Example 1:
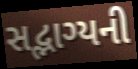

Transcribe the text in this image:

સદ્ભાગ્યની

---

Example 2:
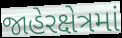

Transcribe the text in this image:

જાહેરક્ષેત્રમાં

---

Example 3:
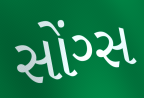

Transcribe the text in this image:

સોંગ્સ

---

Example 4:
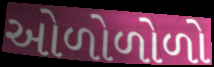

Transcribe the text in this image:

ઓળોળોળો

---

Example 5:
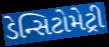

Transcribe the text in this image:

ડેન્સિટોમેટ્રી